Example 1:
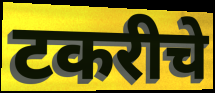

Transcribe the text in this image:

टकरीचे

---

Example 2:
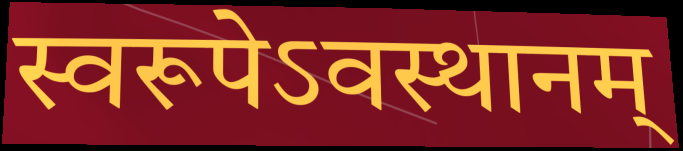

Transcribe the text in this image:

स्वरूपेऽवस्थानम्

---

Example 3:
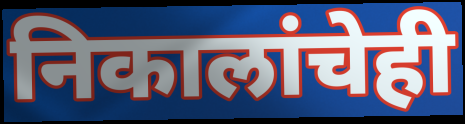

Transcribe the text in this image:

निकालांचेही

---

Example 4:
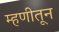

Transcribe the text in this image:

म्हणीतून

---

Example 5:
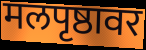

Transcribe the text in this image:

मलपृष्ठावर